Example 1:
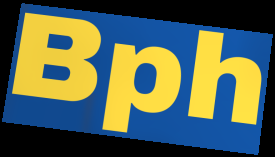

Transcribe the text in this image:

Bph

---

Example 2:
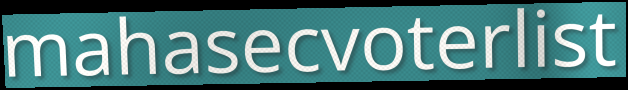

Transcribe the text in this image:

mahasecvoterlist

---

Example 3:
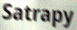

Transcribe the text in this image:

Satrapy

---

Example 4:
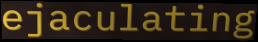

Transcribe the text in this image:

ejaculating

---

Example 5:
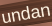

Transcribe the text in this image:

undan